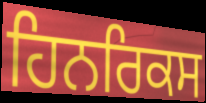
ਹਿਨਰਿਕਸ